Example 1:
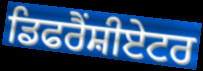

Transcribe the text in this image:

ਡਿਫਰੈਂਸ਼ੀਏਟਰ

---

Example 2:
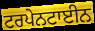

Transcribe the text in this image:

ਟਰਪੇਨਟਾਈਨ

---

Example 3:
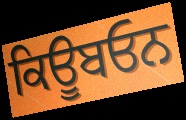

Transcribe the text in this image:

ਕਿਊਬਓਨ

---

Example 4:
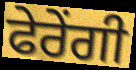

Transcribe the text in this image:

ਫੇਰੇਂਗੀ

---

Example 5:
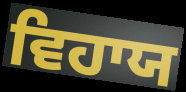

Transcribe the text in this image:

ਵਿਹਾਯ